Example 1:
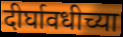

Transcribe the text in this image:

दीर्घावधीच्या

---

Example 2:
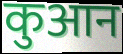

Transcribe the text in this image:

कुआन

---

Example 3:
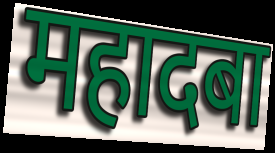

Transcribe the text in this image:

महादबा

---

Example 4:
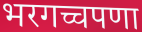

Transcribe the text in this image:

भरगच्चपणा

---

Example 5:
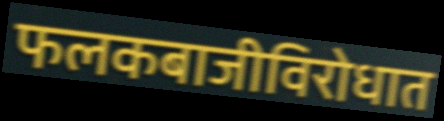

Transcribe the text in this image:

फलकबाजीविरोधात